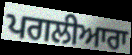
ਪਗਲੀਆਰਾ